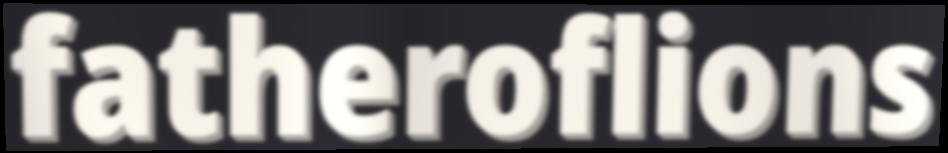
fatheroflions